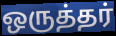
ஒருத்தர்